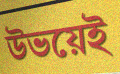
উভয়েই